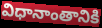
విధానాంతానికి